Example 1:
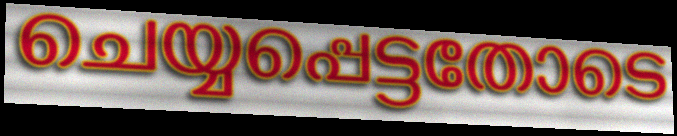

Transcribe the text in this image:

ചെയ്യപ്പെട്ടതോടെ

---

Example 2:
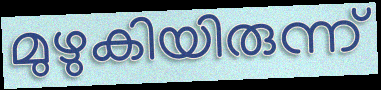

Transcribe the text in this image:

മുഴുകിയിരുന്ന്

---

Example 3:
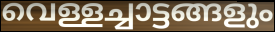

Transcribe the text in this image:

വെള്ളച്ചാട്ടങ്ങളും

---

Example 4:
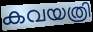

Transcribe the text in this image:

കവയത്രി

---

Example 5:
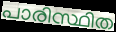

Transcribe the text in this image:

പാരിസ്ഥിത